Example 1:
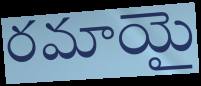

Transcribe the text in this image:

రమాయై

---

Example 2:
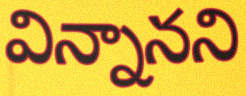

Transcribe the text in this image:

విన్నానని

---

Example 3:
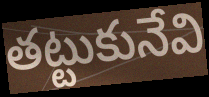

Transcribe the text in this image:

తట్టుకునేవి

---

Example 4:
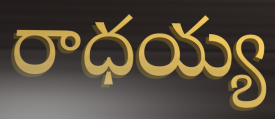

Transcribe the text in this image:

రాధయ్య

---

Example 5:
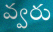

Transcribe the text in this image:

వ్వరు